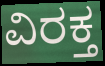
ವಿರಕ್ತ